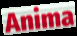
Anima